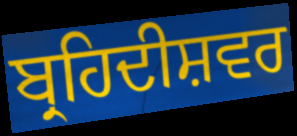
ਬ੍ਰਹਿਦੀਸ਼ਵਰ